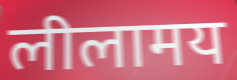
लीलामय